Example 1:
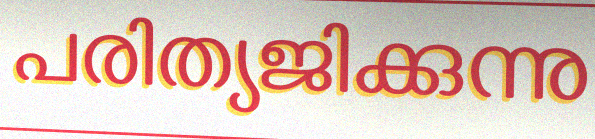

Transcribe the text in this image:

പരിത്യജിക്കുന്നു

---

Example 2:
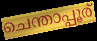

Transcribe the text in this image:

ചെന്താപ്പൂര്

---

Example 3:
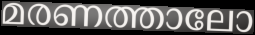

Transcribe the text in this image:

മരണത്താലോ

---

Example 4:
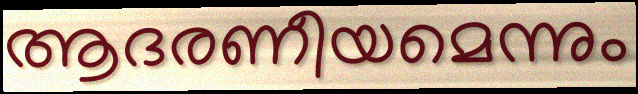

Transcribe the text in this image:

ആദരണീയമെന്നും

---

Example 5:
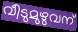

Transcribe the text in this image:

വീടുമുഴുവന്